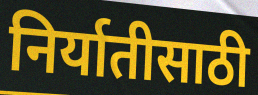
निर्यातीसाठी